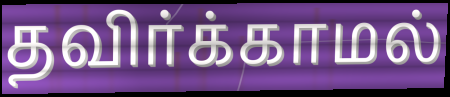
தவிர்க்காமல்